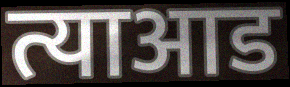
त्याआड